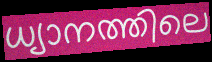
ധ്യാനത്തിലെ